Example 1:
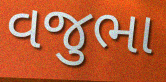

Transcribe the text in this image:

વજુભા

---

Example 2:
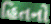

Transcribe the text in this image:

હિતનો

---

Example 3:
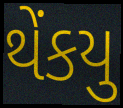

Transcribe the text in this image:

થેંકયુ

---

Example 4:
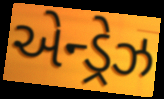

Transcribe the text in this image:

એન્ડ્રેઝ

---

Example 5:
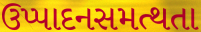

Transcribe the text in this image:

ઉપ્પાદનસમત્થતા